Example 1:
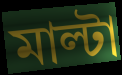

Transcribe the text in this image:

মাল্টা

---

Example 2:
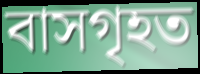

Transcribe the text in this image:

বাসগৃহত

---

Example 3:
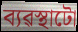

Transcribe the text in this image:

ব্যৱস্থাটো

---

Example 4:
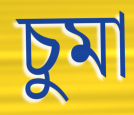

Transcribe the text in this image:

চুমা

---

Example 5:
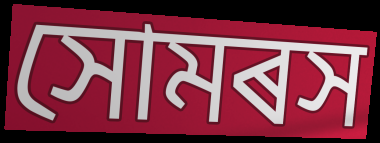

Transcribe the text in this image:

সোমৰস